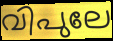
വിപുലേ